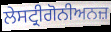
ਲੇਸਟ੍ਰੀਗੋਨੀਅਨਜ਼